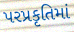
પરપ્રકૃતિમાં